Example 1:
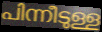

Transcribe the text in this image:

പിന്നീടുള്ള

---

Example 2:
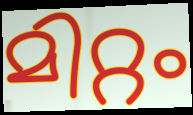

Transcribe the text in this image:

മിറ്റം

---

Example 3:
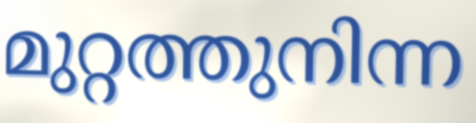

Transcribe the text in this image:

മുറ്റത്തുനിന്ന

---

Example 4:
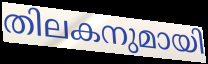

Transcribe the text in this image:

തിലകനുമായി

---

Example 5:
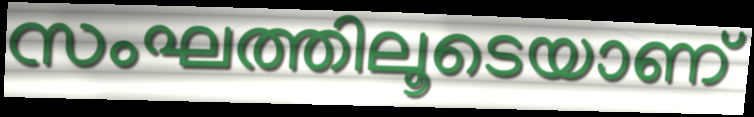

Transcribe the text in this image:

സംഘത്തിലൂടെയാണ്